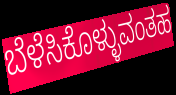
ಬೆಳೆಸಿಕೊಳ್ಳುವಂತಹ